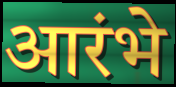
आरंभे